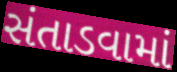
સંતાડવામાં